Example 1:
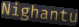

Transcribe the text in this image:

Nighantu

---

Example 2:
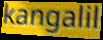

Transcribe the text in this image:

kangalil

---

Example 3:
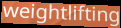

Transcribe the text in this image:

weightlifting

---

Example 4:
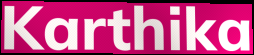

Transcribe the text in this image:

Karthika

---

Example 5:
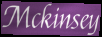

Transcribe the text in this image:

Mckinsey